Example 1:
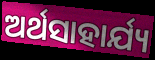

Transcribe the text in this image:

ଅର୍ଥସାହାର୍ଯ୍ୟ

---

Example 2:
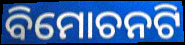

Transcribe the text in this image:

ବିମୋଚନଟି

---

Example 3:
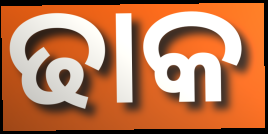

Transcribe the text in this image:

ଢାକ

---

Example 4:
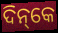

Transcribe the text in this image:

ଦିନ୍‌କେ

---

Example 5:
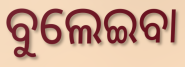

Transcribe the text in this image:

ବୁଲେଇବା